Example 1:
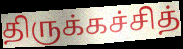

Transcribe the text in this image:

திருக்கச்சித்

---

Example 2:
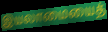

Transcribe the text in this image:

இயலாமையைத்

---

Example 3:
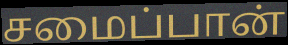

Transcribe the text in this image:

சமைப்பான்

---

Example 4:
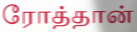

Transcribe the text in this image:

ரோத்தான்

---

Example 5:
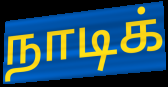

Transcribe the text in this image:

நாடிக்